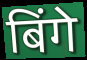
बिंगे